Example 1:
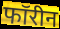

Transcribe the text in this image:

फॉरीन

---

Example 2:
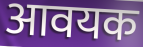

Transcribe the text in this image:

आवयक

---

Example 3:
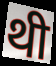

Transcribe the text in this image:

थी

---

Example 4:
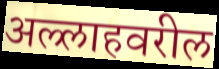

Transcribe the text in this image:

अल्लाहवरील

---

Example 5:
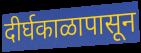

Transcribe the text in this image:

दीर्घकाळापासून